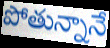
పోతున్నానే